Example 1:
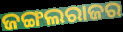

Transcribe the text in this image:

ଜଙ୍ଗଲରାଜର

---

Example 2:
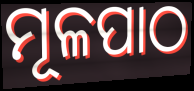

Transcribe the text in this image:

ମୂଳପାଠ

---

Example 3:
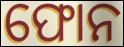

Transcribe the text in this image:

ଫୋନ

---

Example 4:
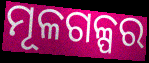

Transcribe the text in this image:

ମୂଳଗଳ୍ପର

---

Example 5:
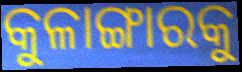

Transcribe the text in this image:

କୁଳାଙ୍ଗାରକୁ